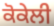
ਕੋਕੇਲੀ